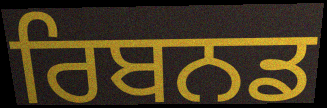
ਰਿਬਨਡ